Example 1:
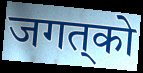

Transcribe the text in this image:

जगत्‌को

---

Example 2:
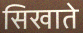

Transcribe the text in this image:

सिखाते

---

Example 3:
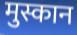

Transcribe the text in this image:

मुस्कान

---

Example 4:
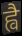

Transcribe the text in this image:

ह्वै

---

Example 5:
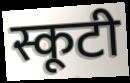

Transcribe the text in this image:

स्कूटी